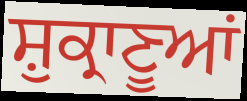
ਸ਼ੁਕ੍ਰਾਣੂਆਂ